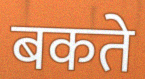
बकते